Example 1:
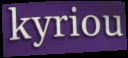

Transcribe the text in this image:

kyriou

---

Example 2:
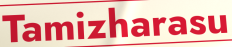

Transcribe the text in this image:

Tamizharasu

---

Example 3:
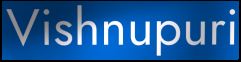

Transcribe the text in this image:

Vishnupuri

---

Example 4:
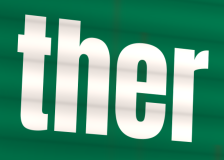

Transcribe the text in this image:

ther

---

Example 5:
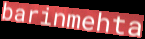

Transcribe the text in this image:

barinmehta